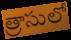
త్రాసులో